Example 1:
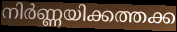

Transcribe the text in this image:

നിർണ്ണയിക്കത്തക്ക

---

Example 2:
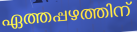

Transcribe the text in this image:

ഏത്തപ്പഴത്തിന്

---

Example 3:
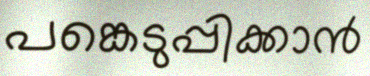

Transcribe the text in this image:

പങ്കെടുപ്പിക്കാൻ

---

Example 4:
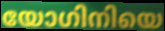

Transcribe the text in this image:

യോഗിനിയെ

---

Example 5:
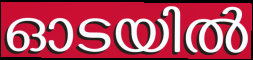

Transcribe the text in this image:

ഓടയിൽ